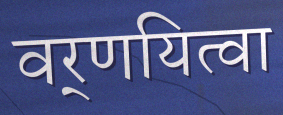
वर्णयित्वा